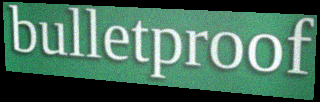
bulletproof